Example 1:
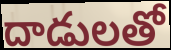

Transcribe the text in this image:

దాడులతో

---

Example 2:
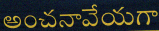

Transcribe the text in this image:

అంచనావేయగా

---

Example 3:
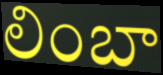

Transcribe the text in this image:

లింబా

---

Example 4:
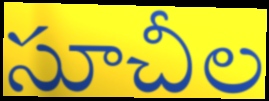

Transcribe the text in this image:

సూచీల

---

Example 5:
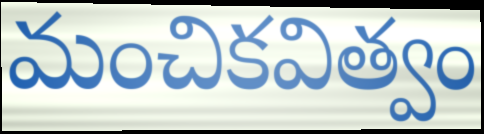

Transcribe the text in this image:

మంచికవిత్వం